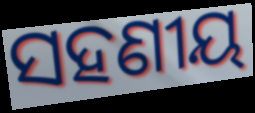
ସହଣୀୟ